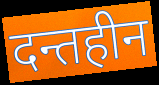
दन्तहीन